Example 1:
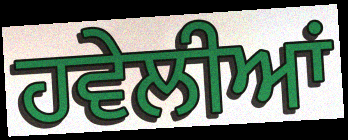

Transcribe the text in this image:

ਹਵੇਲੀਆਂ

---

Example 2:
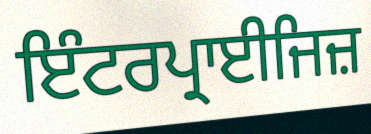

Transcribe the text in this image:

ਇੰਟਰਪ੍ਰਾਈਜਿਜ਼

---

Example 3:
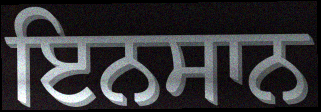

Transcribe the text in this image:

ਇਨਸਾਨ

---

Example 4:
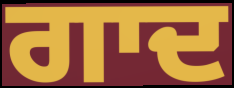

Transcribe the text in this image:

ਗਾਦ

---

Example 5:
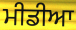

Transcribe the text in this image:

ਮੀਡੀਆ